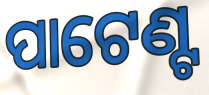
ପାଟେଣ୍ଟ